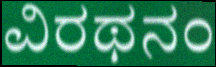
ವಿರಥನಂ